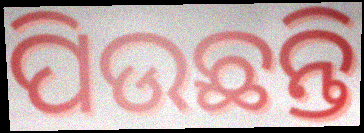
ପିଉଛନ୍ତି